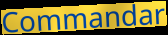
Commandar